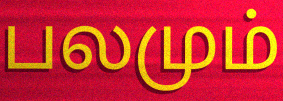
பலமும்